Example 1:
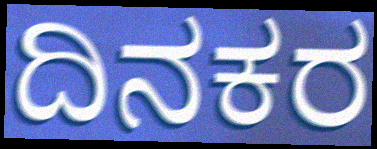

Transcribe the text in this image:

ದಿನಕರ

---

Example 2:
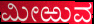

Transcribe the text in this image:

ಮೀಱುವ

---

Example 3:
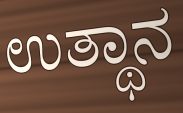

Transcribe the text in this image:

ಉತ್ಥಾನ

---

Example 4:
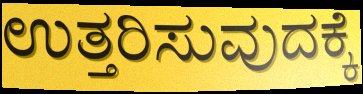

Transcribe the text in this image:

ಉತ್ತರಿಸುವುದಕ್ಕೆ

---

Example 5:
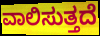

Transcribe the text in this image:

ವಾಲಿಸುತ್ತದೆ